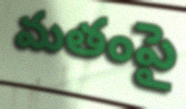
మతంపై